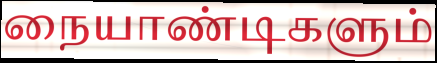
நையாண்டிகளும்